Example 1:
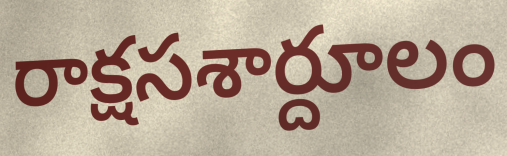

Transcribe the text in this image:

రాక్షసశార్దూలం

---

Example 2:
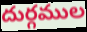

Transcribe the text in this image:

దుర్గముల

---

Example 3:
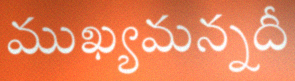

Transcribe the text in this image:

ముఖ్యమన్నదీ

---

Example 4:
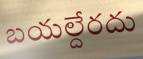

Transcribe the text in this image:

బయల్దేరదు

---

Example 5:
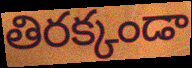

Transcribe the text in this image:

తిరక్కండా